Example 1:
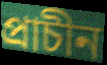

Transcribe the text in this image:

প্ৰাচীন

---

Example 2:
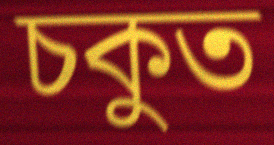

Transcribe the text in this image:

চকুত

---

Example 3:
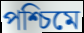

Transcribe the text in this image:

পশ্চিমে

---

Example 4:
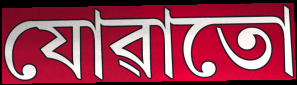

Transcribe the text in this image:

যোৱাতো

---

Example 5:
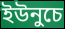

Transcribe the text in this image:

ইউনুচে